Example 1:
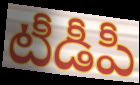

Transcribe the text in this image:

టీడీపీ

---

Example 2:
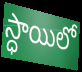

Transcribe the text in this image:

స్ధాయిలో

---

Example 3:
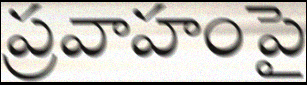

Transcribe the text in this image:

ప్రవాహంపై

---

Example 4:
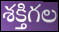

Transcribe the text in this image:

శక్తిగల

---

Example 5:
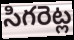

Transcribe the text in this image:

సిగరెట్ల